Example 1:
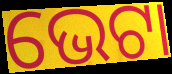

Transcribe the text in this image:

ଭେଟା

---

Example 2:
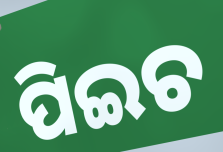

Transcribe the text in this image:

ପିଇଚ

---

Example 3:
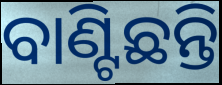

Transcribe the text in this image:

ବାଣ୍ଟିଛନ୍ତି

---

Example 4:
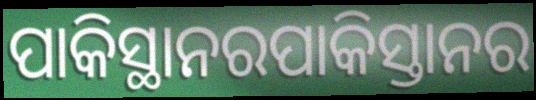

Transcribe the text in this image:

ପାକିସ୍ଥାନରପାକିସ୍ତାନର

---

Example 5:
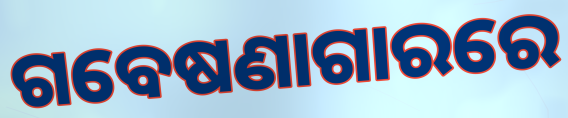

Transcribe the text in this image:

ଗବେଷଣାଗାରରେ